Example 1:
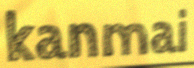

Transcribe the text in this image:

kanmai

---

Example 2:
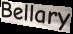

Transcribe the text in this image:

Bellary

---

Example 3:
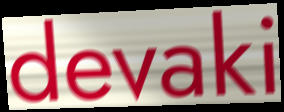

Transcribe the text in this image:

devaki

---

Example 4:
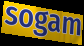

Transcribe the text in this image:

sogam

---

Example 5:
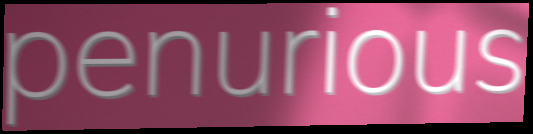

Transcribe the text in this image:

penurious